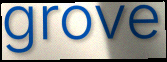
grove